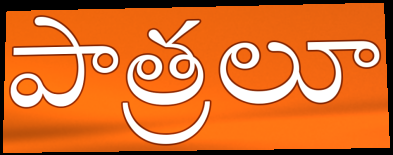
పాత్రలూ